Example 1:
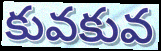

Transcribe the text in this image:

కువకువ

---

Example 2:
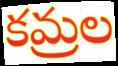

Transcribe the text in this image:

కమ్రల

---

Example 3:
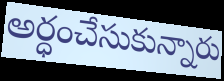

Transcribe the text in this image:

అర్ధంచేసుకున్నారు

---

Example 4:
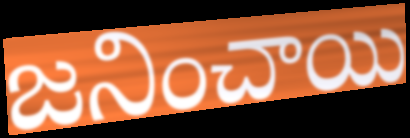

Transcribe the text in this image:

జనించాయి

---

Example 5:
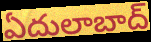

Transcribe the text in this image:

ఏదులాబాద్